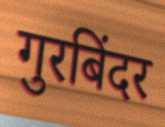
गुरबिंदर